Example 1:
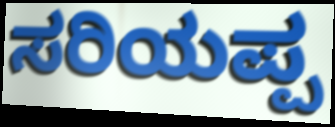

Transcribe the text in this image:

ಸರಿಯಪ್ಪ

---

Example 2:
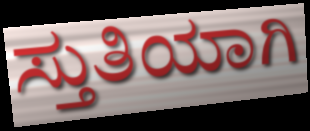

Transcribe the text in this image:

ಸ್ತುತಿಯಾಗಿ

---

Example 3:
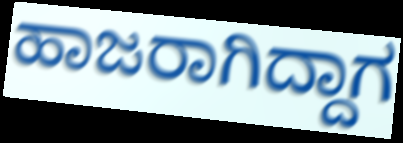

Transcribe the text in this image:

ಹಾಜರಾಗಿದ್ದಾಗ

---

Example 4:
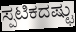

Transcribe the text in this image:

ಸ್ಪಟಿಕದಷ್ಟು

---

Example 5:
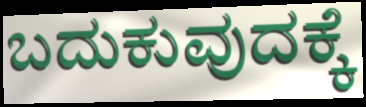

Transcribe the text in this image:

ಬದುಕುವುದಕ್ಕೆ